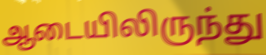
ஆடையிலிருந்து